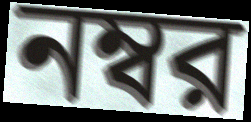
নম্বর